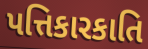
પત્તિકારકાતિ